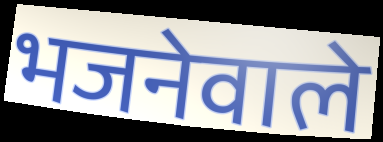
भजनेवाले